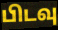
பிடவு